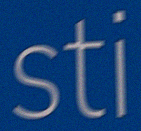
sti